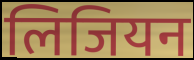
लिजियन